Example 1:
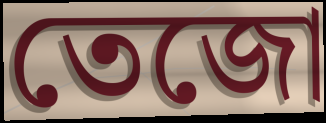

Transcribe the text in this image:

তেজো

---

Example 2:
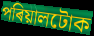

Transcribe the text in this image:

পৰিয়ালটোক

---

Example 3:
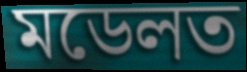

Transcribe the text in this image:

মডেলত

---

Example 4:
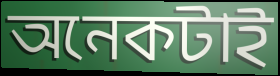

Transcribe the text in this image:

অনেকটাই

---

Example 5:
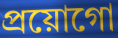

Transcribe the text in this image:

প্ৰয়োগো